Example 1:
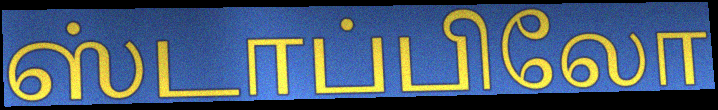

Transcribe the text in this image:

ஸ்டாப்பிலோ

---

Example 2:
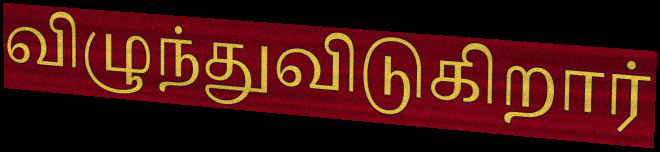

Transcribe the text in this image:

விழுந்துவிடுகிறார்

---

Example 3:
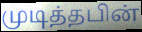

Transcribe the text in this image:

முடித்தபின்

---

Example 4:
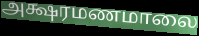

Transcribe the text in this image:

அக்ஷரமணமாலை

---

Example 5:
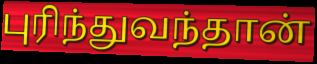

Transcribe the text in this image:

புரிந்துவந்தான்